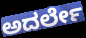
ಅದರ್ಲೇ